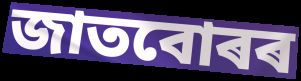
জাতবোৰৰ